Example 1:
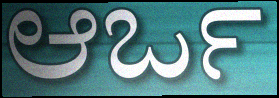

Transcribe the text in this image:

ಆರ್ಒ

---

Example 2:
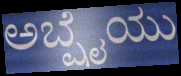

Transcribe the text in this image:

ಅಬ್ಷೈಯು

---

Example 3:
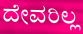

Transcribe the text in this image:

ದೇವರಿಲ್ಲ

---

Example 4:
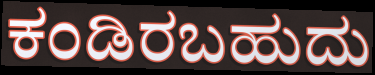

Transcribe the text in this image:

ಕಂಡಿರಬಹುದು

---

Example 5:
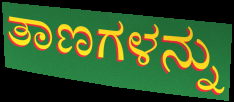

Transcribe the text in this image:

ತಾಣಗಳನ್ನು